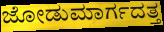
ಜೋಡುಮಾರ್ಗದತ್ತ